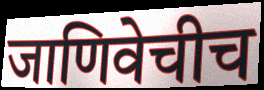
जाणिवेचीच